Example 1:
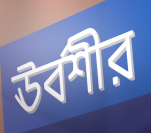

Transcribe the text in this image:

ঊর্বশীর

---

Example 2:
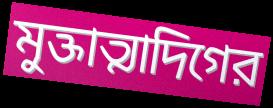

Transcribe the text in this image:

মুক্তাত্মাদিগের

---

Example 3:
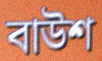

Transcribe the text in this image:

বাউশ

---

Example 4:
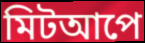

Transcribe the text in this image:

মিটআপে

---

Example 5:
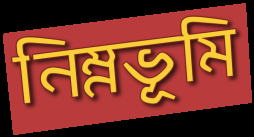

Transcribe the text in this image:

নিম্নভূমি